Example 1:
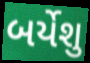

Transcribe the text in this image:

બર્યેશુ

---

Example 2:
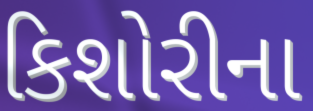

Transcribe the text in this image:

કિશોરીના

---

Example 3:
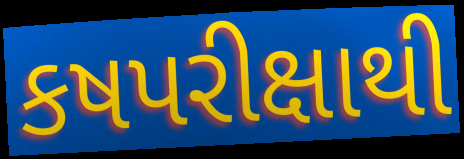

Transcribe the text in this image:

કષપરીક્ષાથી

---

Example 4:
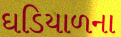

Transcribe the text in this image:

ઘડિયાળના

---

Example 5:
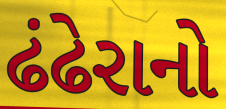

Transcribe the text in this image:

ઢંઢેરાનો